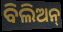
ବିଲିଅନ୍